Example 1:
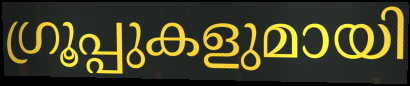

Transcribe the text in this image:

ഗ്രൂപ്പുകളുമായി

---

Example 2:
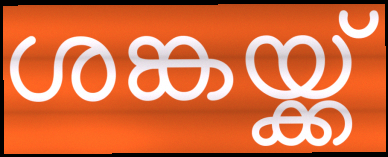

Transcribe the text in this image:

ശങ്കയ്ക്ക്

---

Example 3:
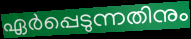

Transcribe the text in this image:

ഏർപ്പെടുന്നതിനും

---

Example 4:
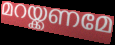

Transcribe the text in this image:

മറയ്ക്കണമേ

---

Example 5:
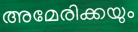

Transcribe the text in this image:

അമേരിക്കയും